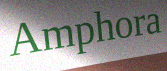
Amphora